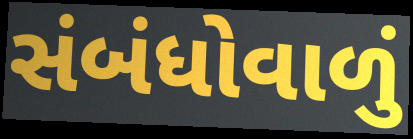
સંબંધોવાળું